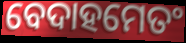
ବେଦାହମେତଂ